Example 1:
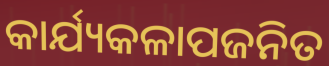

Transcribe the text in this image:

କାର୍ଯ୍ୟକଳାପଜନିତ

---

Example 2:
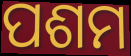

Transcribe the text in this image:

ପଶମ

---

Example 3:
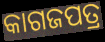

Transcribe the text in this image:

କାଗଜପତ୍ର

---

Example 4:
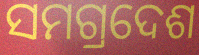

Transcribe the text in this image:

ସମଗ୍ରଦେଶ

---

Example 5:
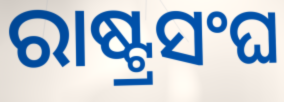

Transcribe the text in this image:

ରାଷ୍ଟ୍ରସଂଘ